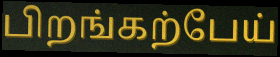
பிறங்கற்பேய்